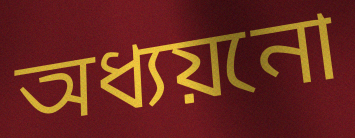
অধ্যয়নো